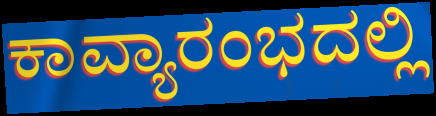
ಕಾವ್ಯಾರಂಭದಲ್ಲಿ